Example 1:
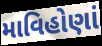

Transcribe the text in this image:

માવિહોણાં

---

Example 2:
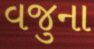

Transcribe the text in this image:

વજુના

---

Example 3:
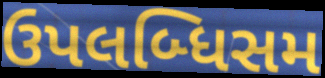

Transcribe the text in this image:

ઉપલબ્ધિસમ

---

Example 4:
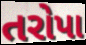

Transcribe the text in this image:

તરોપા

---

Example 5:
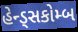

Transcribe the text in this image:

હેન્ડ્સકોમ્બ